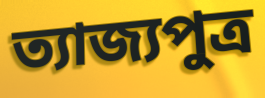
ত্যাজ্যপুত্র